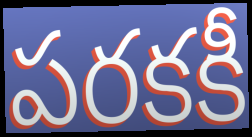
పరకకీ